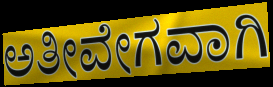
ಅತೀವೇಗವಾಗಿ